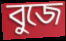
বুজে